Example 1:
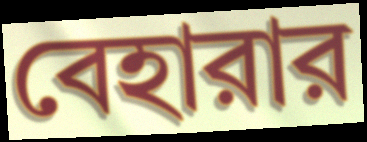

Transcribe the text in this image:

বেহারার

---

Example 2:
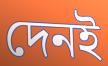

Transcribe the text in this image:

দেনই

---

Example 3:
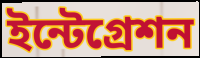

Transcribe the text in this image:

ইন্টেগ্রেশন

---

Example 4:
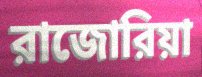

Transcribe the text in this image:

রাজোরিয়া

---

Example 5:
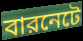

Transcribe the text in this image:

বারনেটে